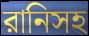
রানিসহ